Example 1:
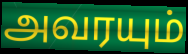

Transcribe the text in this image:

அவரயும்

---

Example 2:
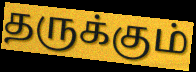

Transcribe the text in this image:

தருக்கும்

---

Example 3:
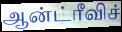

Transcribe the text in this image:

ஆன்ட்ரீவிச்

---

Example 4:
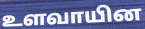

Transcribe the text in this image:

உளவாயின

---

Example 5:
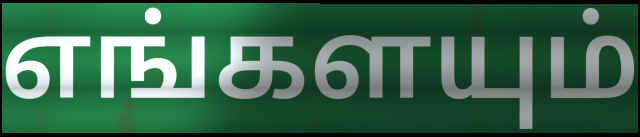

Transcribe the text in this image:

எங்களயும்